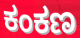
ಕಂಕಣ